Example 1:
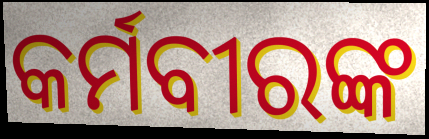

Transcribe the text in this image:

କର୍ମବୀରଙ୍କ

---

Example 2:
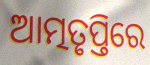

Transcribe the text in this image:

ଆତ୍ମତୃପ୍ତିରେ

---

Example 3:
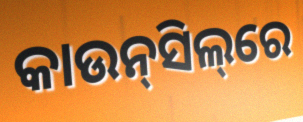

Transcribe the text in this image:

କାଉନ୍‌ସିଲ୍‌ରେ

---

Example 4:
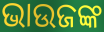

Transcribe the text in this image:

ଭାଉଜଙ୍କ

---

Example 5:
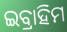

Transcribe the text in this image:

ଇବ୍ରାହିମ